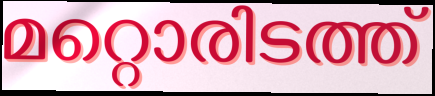
മറ്റൊരിടത്ത്